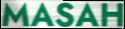
MASAH